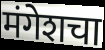
मंगेशचा